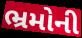
ભ્રમોની